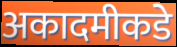
अकादमीकडे